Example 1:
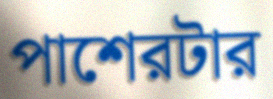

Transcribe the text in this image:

পাশেরটার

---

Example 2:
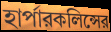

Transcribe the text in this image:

হার্পারকলিন্সের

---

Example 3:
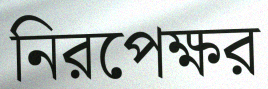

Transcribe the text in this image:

নিরপেক্ষর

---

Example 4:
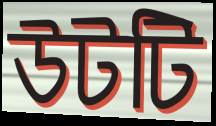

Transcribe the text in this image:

উটটি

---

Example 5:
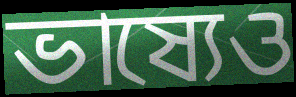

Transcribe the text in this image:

ভাষ্যেও